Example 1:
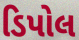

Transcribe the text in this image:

ડિપોલ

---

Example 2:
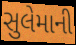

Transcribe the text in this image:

સુલેમાની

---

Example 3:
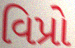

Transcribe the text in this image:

વિપ્રો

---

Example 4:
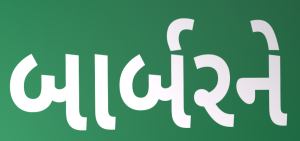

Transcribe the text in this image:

બાર્બરને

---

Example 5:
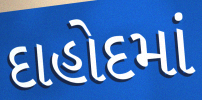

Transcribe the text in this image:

દાહોદમાં